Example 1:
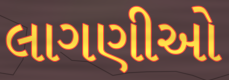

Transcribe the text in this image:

લાગણીઓ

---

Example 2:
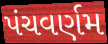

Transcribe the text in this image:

પંચવર્ણમ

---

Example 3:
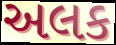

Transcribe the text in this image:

અલક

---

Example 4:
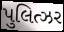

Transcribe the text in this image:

પુલિત્ઝર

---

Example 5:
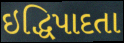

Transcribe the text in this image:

ઇદ્ધિપાદતા